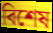
বিশেষ